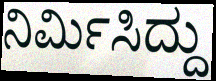
ನಿರ್ಮಿಸಿದ್ದು